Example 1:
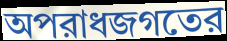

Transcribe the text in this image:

অপরাধজগতের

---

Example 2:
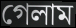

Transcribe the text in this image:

গেলাম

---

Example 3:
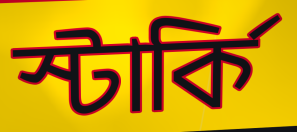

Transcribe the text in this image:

স্টার্কি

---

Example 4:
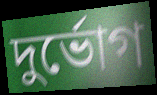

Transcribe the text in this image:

দুর্ভোগ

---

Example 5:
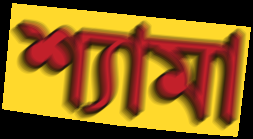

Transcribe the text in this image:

শ্যামা